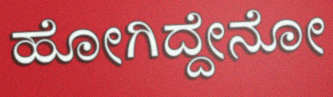
ಹೋಗಿದ್ದೇನೋ